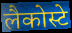
लैकोस्टे